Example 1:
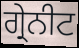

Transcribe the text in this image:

ਗ੍ਰੇਨੀਟ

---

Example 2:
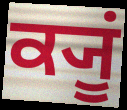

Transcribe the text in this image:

ਕ੍ਯੂਂ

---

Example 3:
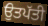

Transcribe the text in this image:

ਉਤਪੱਤੀ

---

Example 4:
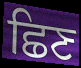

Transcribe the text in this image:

ਛਿਣ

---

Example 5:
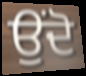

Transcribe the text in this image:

ਉਂਦੋ